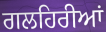
ਗਲਹਿਰੀਆਂ